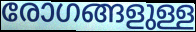
രോഗങ്ങളുള്ള